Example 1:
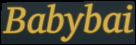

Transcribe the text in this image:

Babybai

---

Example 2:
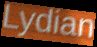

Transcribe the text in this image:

Lydian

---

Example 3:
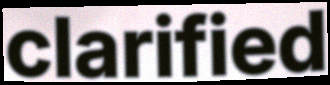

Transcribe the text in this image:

clarified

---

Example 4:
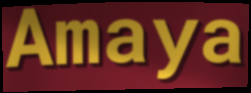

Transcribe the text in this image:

Amaya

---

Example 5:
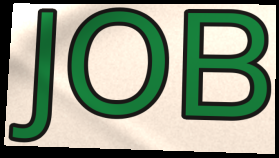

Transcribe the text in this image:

JOB